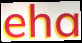
eha